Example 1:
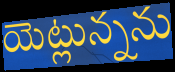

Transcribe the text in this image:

యెట్లున్నను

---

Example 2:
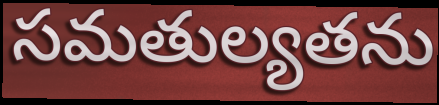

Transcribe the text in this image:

సమతుల్యతను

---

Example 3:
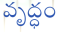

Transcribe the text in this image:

వృద్ధం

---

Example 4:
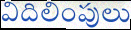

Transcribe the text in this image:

విదిలింపులు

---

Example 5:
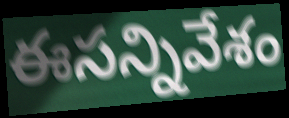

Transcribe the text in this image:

ఈసన్నివేశం